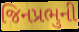
જિનપ્રભુની